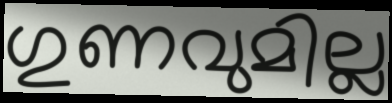
ഗുണവുമില്ല